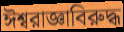
ঈশ্বরাজ্ঞাবিরুদ্ধ